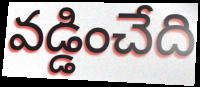
వడ్డించేది